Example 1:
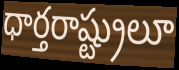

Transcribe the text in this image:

ధార్తరాష్ట్రులూ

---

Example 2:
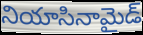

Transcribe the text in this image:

నియాసినామైడ్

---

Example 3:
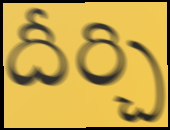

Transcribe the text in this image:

దీర్చి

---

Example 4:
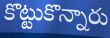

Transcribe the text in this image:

కొట్టుకొన్నారు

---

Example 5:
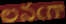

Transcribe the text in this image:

లనఁగా